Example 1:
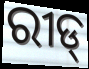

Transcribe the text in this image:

ରୀଡ୍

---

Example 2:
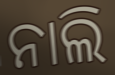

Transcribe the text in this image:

ନାଲି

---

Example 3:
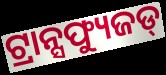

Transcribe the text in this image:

ଟ୍ରାନ୍ସଫ୍ୟୁଜଡ୍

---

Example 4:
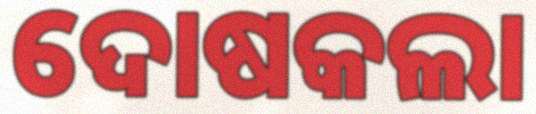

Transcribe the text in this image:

ଦୋଷକଲା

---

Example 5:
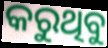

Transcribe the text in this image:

କରୁଥିବୁ